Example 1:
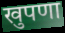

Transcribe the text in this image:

खुपणा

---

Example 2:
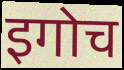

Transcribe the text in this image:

इगोच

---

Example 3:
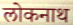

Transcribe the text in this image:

लोकनाथ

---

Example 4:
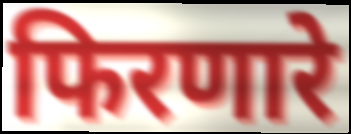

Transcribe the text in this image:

फिरणारे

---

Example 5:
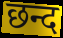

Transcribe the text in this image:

छन्द